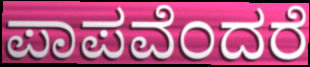
ಪಾಪವೆಂದರೆ